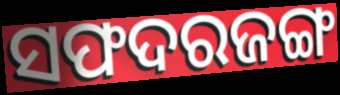
ସଫଦରଜଙ୍ଗ